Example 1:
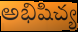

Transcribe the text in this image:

అభిషిచ్య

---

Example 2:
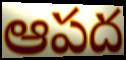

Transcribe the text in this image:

ఆపద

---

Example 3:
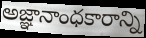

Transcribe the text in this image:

అజ్ఞానాంధకారాన్ని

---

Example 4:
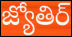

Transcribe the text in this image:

జ్యోతిర్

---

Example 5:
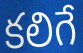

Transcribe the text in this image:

కలిగే